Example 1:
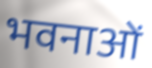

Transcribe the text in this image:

भवनाओं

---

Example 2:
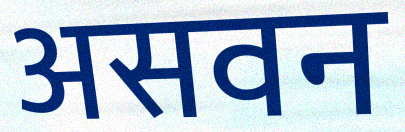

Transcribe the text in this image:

असवन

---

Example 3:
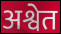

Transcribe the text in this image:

अश्वेत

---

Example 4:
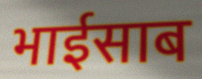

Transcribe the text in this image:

भाईसाब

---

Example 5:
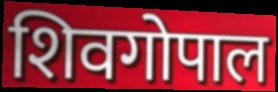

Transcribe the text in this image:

शिवगोपाल